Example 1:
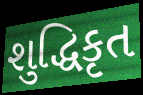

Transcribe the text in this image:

શુદ્ધિકૃત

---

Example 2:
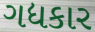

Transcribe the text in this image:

ગદ્યકાર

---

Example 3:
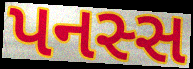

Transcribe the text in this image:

પનસ્સ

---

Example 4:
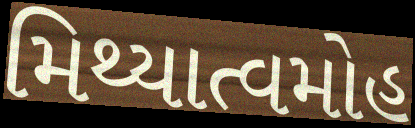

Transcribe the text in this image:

મિથ્યાત્વમોહ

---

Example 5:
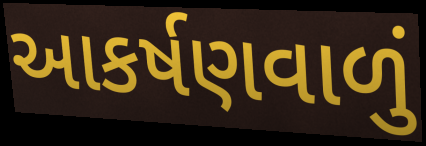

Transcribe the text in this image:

આકર્ષણવાળું